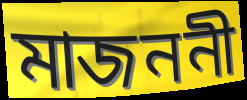
মাজননী